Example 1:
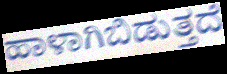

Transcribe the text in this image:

ಹಾಳಾಗಿಬಿಡುತ್ತದೆ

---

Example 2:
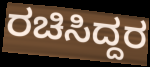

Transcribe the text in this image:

ರಚಿಸಿದ್ದರ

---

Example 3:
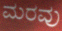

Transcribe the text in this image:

ಮರವು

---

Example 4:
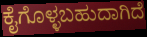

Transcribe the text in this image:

ಕೈಗೊಳ್ಳಬಹುದಾಗಿದೆ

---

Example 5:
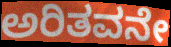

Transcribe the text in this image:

ಅರಿತವನೇ